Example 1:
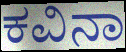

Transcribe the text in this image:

ಕವಿನಾ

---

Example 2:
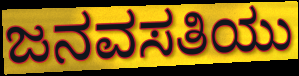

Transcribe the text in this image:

ಜನವಸತಿಯು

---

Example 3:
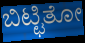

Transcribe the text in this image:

ಬಿಟ್ಟಿತೋ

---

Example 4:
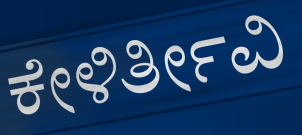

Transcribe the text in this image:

ಕೇಳಿರ್ತೀವಿ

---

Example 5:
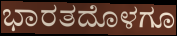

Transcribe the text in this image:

ಭಾರತದೊಳಗೂ